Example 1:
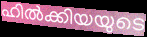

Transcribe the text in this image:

ഹിൽക്കിയയുടെ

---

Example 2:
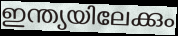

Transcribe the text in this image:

ഇന്ത്യയിലേക്കും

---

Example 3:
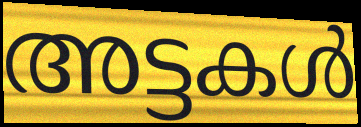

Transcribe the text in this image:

അട്ടകൾ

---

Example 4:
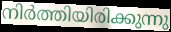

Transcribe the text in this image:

നിർത്തിയിരിക്കുന്നു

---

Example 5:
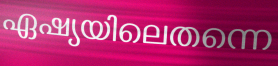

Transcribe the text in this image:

ഏഷ്യയിലെതന്നെ